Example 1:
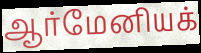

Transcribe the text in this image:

ஆர்மேனியக்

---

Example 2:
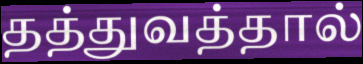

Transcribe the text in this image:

தத்துவத்தால்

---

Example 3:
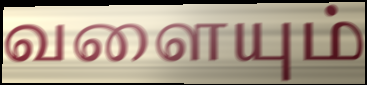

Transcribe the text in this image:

வளையும்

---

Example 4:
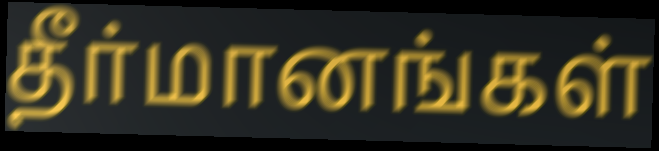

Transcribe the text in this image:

தீர்மானங்கள்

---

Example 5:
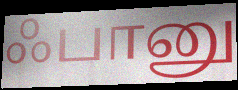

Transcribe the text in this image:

ஃபானு